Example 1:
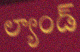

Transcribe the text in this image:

ల్యాండ్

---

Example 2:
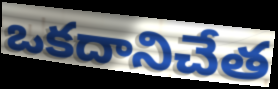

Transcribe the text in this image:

ఒకదానిచేత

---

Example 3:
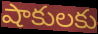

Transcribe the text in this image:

షాకులకు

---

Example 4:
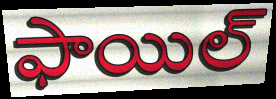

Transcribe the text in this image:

ఫాయిల్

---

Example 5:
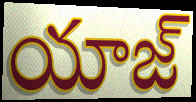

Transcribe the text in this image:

యాజ్